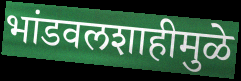
भांडवलशाहीमुळे